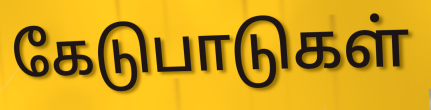
கேடுபாடுகள்